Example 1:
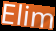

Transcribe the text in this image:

Elim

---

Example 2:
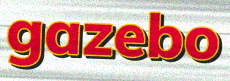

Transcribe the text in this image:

gazebo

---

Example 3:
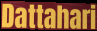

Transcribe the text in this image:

Dattahari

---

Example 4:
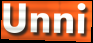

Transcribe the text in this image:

Unni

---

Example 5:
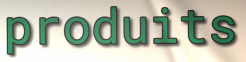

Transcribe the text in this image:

produits